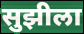
सुझीला